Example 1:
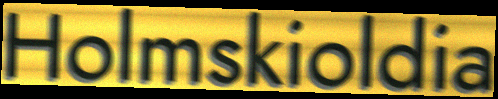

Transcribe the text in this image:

Holmskioldia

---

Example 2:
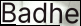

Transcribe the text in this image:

Badhe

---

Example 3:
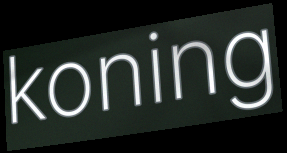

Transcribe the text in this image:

koning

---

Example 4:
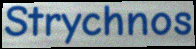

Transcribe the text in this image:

Strychnos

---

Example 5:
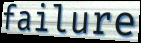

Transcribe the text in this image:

failure